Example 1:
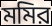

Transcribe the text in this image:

মমির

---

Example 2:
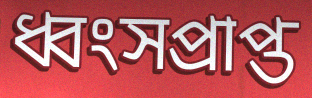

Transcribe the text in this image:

ধ্বংসপ্রাপ্ত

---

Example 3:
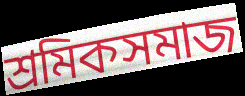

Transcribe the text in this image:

শ্রমিকসমাজ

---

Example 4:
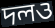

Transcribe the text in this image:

দলও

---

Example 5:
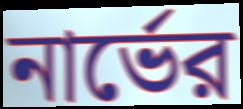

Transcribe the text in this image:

নার্ভের